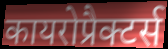
कायरोप्रैक्टर्स